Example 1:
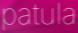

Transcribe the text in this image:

patula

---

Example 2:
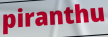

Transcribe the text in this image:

piranthu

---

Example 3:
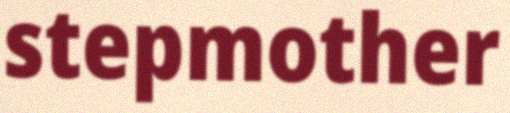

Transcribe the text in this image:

stepmother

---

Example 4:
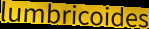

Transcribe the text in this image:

lumbricoides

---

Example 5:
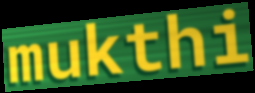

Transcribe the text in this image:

mukthi